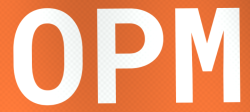
OPM